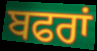
ਬਫਰਾਂ